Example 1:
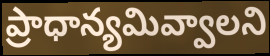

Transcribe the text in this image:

ప్రాధాన్యమివ్వాలని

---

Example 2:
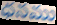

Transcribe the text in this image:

ధనము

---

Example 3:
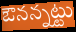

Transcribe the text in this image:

ఔనన్నట్టు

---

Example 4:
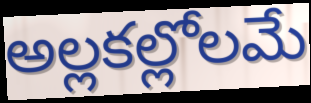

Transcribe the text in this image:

అల్లకల్లోలమే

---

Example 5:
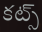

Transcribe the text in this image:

కట్స్